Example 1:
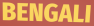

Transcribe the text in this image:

BENGALI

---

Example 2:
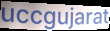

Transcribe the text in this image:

uccgujarat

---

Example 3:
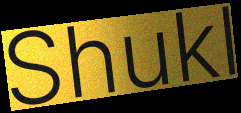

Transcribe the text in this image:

Shukl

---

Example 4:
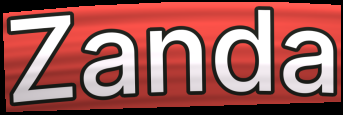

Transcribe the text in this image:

Zanda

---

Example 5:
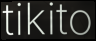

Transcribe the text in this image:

tikito